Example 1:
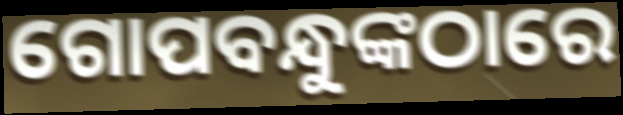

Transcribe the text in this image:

ଗୋପବନ୍ଧୁଙ୍କଠାରେ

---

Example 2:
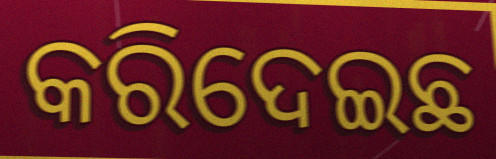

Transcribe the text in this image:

କରିଦେଇଛ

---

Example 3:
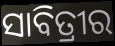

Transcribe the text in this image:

ସାବିତ୍ରୀର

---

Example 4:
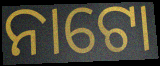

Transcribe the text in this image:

ନାଟୋ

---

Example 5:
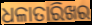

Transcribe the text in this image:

ଧଳାତାରିଖର